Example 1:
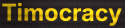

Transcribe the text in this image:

Timocracy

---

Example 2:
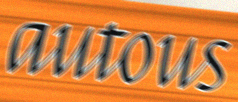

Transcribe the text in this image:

autous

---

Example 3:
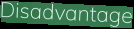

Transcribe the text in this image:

Disadvantage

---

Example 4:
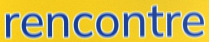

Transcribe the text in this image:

rencontre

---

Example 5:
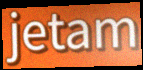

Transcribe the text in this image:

jetam